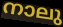
നാലു